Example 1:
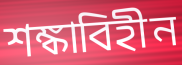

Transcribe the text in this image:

শঙ্কাবিহীন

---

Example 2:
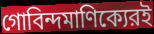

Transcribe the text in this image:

গোবিন্দমাণিক্যেরই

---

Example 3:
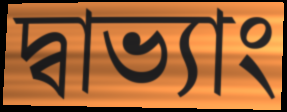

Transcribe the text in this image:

দ্বাভ্যাং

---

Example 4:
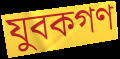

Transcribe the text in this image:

যুবকগণ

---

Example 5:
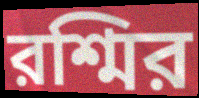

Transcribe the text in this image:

রশ্মির